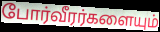
போர்வீரர்களையும்